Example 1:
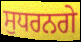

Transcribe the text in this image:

ਸੁਧਰਨਗੇ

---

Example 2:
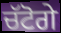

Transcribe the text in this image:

ਚੱਟੋਗੇ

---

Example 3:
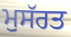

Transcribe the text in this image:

ਮੁਸੱਰਤ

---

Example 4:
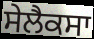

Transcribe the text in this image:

ਸੇਲੈਕਸਾ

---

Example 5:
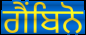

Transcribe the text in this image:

ਗੈਂਬਿਨੋ